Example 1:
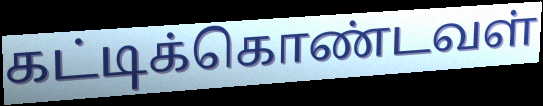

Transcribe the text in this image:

கட்டிக்கொண்டவள்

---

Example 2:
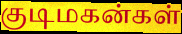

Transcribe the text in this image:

குடிமகன்கள்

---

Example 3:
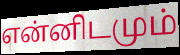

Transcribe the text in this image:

என்னிடமும்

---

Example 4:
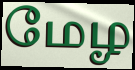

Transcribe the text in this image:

மேழ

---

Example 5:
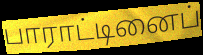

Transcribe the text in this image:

பாராட்டினைப்